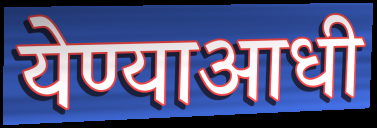
येण्याआधी